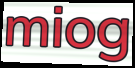
miog